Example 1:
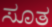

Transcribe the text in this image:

ಸೂತ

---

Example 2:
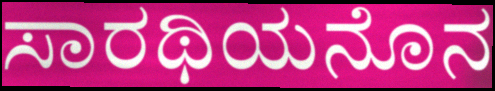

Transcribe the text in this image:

ಸಾರಥಿಯನೊನ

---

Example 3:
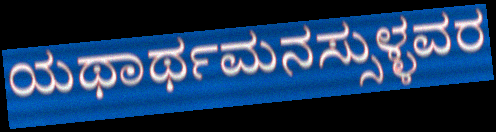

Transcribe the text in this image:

ಯಥಾರ್ಥಮನಸ್ಸುಳ್ಳವರ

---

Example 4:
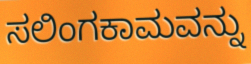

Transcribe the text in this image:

ಸಲಿಂಗಕಾಮವನ್ನು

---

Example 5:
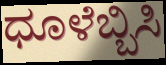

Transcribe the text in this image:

ಧೂಳೆಬ್ಬಿಸಿ